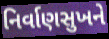
નિર્વાણસુખને